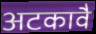
अटकावै